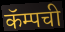
कॅम्पची